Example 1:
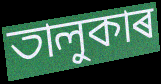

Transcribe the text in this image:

তালুকাৰ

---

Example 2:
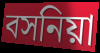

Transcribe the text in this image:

বসনিয়া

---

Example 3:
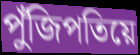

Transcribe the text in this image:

পুঁজিপতিয়ে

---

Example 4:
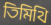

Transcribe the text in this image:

তিমিথি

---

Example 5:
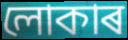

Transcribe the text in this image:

লোকাৰ